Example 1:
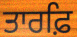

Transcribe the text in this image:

ਤਾਰਫ਼ਿ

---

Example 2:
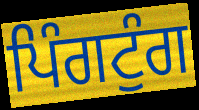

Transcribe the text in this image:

ਪਿੰਗਟੁੰਗ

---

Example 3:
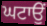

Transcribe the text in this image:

ਘਟਾਉਂ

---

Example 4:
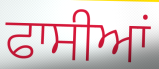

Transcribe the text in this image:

ਫਾਸੀਆਂ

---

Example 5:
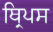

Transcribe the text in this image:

ਥ੍ਰਿਪਸ